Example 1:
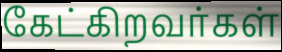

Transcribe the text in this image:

கேட்கிறவர்கள்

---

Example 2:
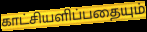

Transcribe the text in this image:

காட்சியளிப்பதையும்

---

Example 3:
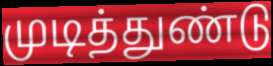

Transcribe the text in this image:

முடித்துண்டு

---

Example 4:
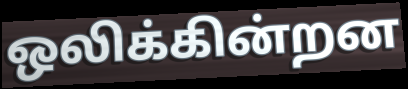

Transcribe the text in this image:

ஒலிக்கின்றன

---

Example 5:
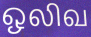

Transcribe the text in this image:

ஒலிவ